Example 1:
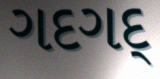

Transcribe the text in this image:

ગદગદ્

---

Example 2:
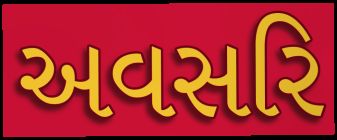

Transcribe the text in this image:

અવસરિ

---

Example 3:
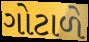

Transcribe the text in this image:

ગોટાળે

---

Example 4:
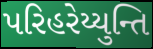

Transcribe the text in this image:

પરિહરેય્યુન્તિ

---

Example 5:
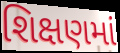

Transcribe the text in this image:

શિક્ષણમાં